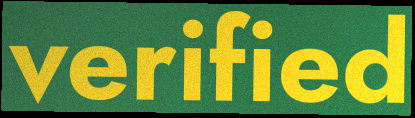
verified